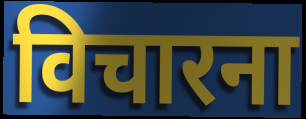
विचारना